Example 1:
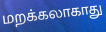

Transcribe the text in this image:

மறக்கலாகாது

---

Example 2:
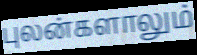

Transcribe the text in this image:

புலன்களாலும்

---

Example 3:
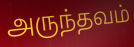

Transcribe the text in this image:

அருந்தவம்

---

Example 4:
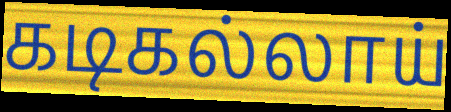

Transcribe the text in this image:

கடிகல்லாய்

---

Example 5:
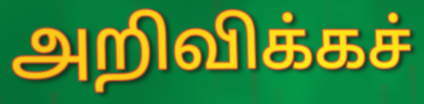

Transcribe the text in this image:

அறிவிக்கச்